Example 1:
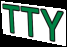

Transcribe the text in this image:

TTY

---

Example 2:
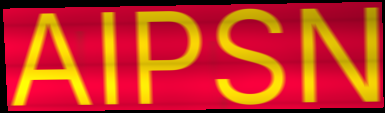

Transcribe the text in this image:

AIPSN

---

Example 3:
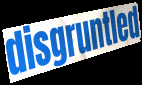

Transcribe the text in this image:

disgruntled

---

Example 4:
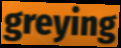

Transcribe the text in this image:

greying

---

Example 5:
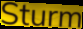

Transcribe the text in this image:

Sturm